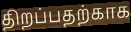
திறப்பதற்காக